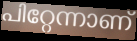
പിറ്റേന്നാണ്